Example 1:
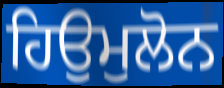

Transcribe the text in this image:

ਹਿਉਮੁਲੋਨ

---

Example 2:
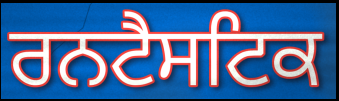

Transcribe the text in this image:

ਰਨਟੈਸਟਿਕ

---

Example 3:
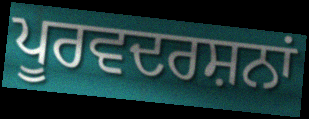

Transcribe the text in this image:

ਪੂਰਵਦਰਸ਼ਨਾਂ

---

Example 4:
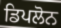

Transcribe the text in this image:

ਡਿਪਲੋਨ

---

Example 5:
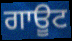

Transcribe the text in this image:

ਗਾਊਟ